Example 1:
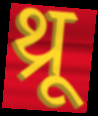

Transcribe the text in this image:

थ्रू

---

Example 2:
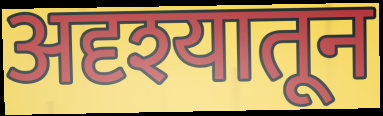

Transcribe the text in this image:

अदृश्यातून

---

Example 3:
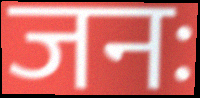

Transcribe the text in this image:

जनः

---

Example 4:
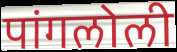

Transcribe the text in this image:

पांगलोली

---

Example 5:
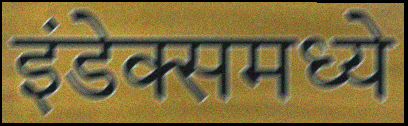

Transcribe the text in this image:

इंडेक्समध्ये